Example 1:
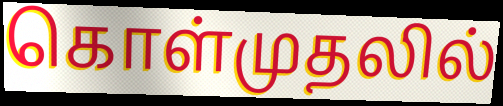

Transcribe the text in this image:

கொள்முதலில்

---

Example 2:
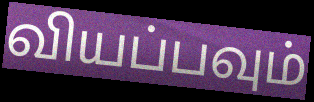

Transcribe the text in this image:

வியப்பவும்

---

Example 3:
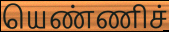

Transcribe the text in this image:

யெண்ணிச்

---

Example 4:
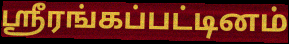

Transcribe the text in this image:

ஸ்ரீரங்கப்பட்டினம்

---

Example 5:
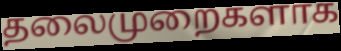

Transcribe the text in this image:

தலைமுறைகளாக